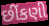
છીંકણી